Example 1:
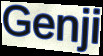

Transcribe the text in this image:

Genji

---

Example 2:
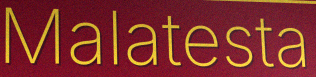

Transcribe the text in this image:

Malatesta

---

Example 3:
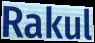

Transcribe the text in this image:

Rakul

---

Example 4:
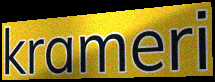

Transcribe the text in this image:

krameri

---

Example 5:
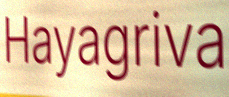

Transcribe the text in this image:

Hayagriva